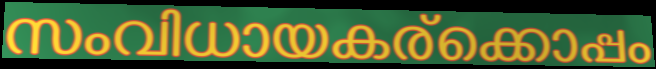
സംവിധായകര്ക്കൊപ്പം